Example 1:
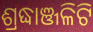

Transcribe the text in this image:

ଶ୍ରଦ୍ଧାଞ୍ଜଳିଟି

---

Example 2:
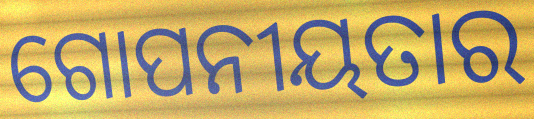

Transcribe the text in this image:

ଗୋପନୀୟତାର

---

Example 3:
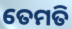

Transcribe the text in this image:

ତେମତି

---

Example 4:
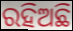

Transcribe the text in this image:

ରହିଅଛି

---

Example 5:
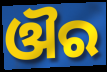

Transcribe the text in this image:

ଔର